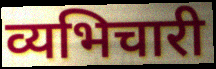
व्यभिचारी